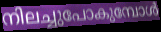
നിലച്ചുപോകുമ്പോൾ